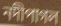
নদীপাগল